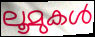
ലൂമുകൾ